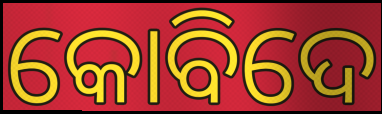
କୋବିଦେ